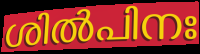
ശിൽപിനഃ